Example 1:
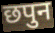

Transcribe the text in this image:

छपुन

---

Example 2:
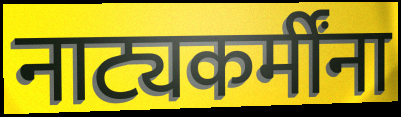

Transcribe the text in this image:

नाट्यकर्मींना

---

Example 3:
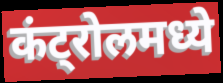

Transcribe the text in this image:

कंट्रोलमध्ये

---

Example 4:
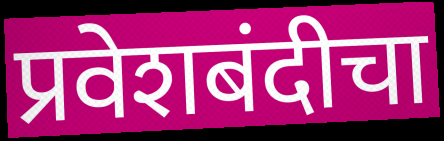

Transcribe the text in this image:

प्रवेशबंदीचा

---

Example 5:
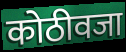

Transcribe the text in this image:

कोठीवजा